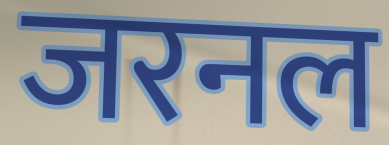
जरनल